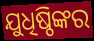
ଯୁଧିଷ୍ଠିଙ୍କର